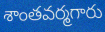
శాంతవర్మగారు